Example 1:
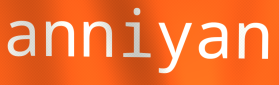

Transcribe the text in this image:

anniyan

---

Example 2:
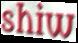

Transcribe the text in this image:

shiw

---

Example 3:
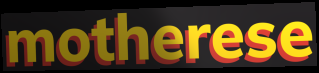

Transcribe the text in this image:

motherese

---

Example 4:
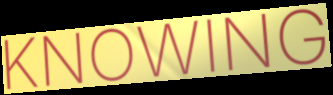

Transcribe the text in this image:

KNOWING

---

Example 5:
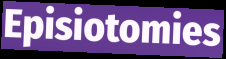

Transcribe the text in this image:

Episiotomies